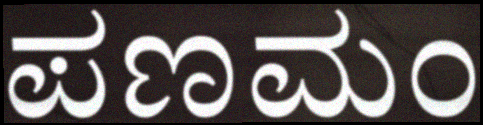
ಪಣಮಂ